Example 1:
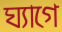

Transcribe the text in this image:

ঘ্যাগে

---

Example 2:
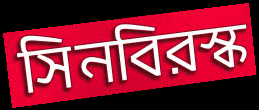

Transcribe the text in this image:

সিনবিরস্ক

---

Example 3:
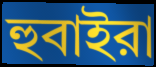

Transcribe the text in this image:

হুবাইরা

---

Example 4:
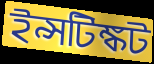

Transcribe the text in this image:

ইন্সটিঙ্কট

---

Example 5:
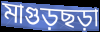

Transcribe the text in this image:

মাগুড়ছড়া